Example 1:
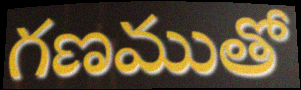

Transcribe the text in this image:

గణముతో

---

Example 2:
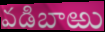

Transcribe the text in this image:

వడిబాఱు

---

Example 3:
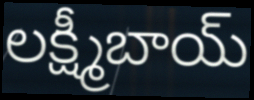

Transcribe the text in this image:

లక్ష్మీబాయ్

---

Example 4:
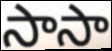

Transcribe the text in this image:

సాసా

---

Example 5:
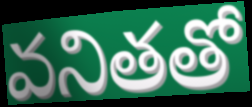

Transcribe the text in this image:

వనితతో